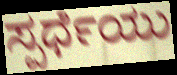
ಸ್ಪರ್ಧೆಯು